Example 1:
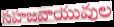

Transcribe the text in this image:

సహజవాయువుల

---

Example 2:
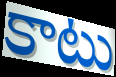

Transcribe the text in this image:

కాటు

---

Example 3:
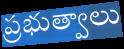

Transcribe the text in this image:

ప్రభుత్వాలు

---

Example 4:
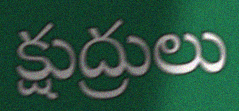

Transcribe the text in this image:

క్షుద్రులు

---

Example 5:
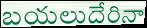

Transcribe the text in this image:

బయలుదేరినా